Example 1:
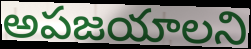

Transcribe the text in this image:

అపజయాలని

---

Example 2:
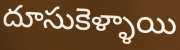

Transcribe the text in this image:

దూసుకెళ్ళాయి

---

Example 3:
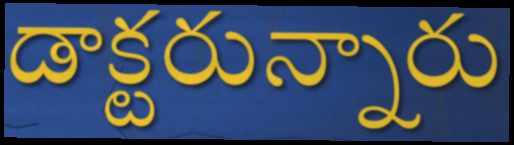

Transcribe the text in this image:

డాక్టరున్నారు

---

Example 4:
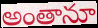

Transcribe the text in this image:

అంతానూ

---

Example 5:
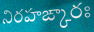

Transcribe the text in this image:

నిరహఙ్కారః